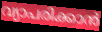
വ്യാപരിക്കാൻ